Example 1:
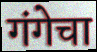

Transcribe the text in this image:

गंगेचा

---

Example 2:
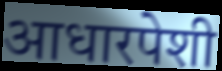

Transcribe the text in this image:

आधारपेशी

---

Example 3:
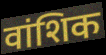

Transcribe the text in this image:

वांशिक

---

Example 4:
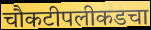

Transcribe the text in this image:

चौकटीपलीकडचा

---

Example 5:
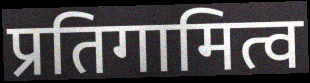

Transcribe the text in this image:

प्रतिगामित्व